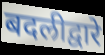
बदलीद्वारे